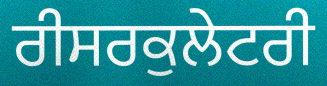
ਰੀਸਰਕੁਲੇਟਰੀ